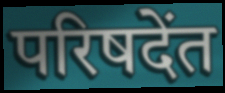
परिषदेंत